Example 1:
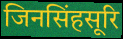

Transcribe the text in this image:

जिनसिंहसूरि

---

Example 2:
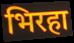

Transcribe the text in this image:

भिरहा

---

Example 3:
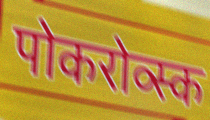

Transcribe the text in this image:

पोकरोव्स्क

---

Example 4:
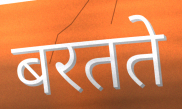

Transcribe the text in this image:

बरतते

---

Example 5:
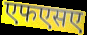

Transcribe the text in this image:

एफएसए